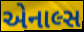
એનાલ્સ